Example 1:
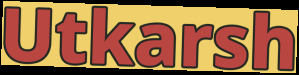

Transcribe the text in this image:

Utkarsh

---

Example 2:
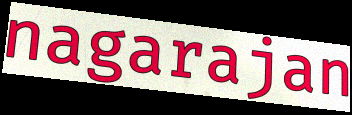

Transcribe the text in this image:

nagarajan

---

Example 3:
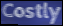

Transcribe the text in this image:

Costly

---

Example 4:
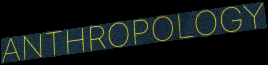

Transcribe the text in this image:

ANTHROPOLOGY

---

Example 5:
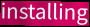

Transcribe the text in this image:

installing